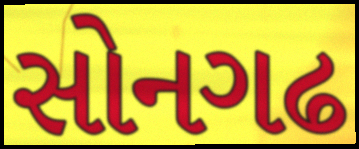
સોનગઢ